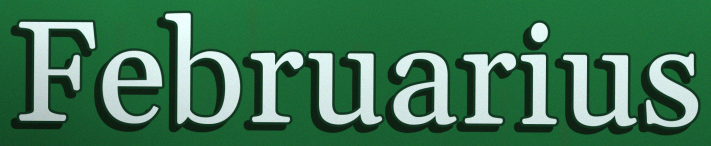
Februarius